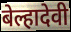
बेल्हादेवी